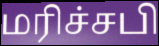
மரிச்சபி